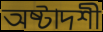
অষ্টাদশী